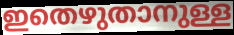
ഇതെഴുതാനുള്ള